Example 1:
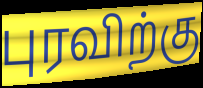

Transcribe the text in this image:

புரவிற்கு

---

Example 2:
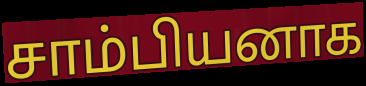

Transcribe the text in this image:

சாம்பியனாக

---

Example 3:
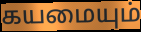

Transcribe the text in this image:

கயமையும்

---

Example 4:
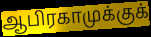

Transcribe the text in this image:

ஆபிரகாமுக்குக்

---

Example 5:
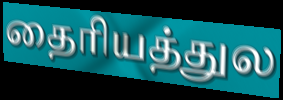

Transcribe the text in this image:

தைரியத்துல